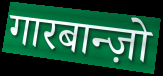
गारबान्ज़ो